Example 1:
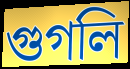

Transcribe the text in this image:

গুগলি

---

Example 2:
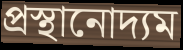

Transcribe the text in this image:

প্রস্থানোদ্যম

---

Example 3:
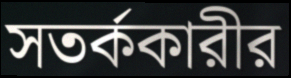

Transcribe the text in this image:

সতর্ককারীর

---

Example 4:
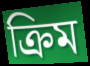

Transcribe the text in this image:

ক্রিম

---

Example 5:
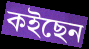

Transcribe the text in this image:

কইছেন